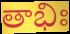
తాభిః